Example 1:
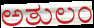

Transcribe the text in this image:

ಅತುಲಂ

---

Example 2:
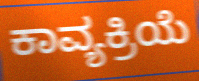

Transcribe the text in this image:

ಕಾವ್ಯಕ್ರಿಯೆ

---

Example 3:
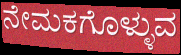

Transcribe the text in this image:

ನೇಮಕಗೊಳ್ಳುವ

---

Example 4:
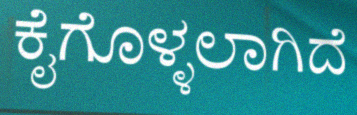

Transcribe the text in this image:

ಕೈಗೊಳ್ಳಲಾಗಿದೆ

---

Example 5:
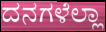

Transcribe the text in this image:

ದನಗಳೆಲ್ಲಾ